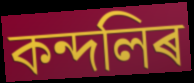
কন্দলিৰ